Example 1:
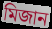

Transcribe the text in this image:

মিজান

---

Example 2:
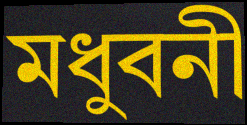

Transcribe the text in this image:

মধুবনী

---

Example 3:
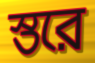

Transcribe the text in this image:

স্তরে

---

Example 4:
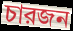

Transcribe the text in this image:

চারজন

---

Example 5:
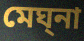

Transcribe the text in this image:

মেঘ্‌না